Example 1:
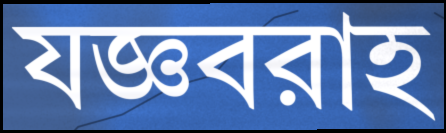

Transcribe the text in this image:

যজ্ঞবরাহ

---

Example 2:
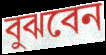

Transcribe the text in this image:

বুঝবেন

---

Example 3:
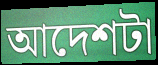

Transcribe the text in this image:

আদেশটা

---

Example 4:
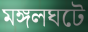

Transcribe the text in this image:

মঙ্গলঘটে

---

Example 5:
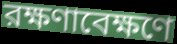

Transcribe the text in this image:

রক্ষণাবেক্ষণে